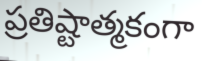
ప్రతిష్టాత్మకంగా